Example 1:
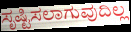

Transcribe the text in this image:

ಸೃಷ್ಟಿಸಲಾಗುವುದಿಲ್ಲ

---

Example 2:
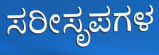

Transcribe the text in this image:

ಸರೀಸೃಪಗಳ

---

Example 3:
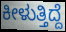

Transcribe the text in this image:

ಕೀಳುತ್ತಿದ್ದೆ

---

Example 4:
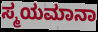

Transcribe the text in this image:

ಸ್ಮಯಮಾನಾ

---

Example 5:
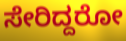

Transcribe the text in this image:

ಸೇರಿದ್ದರೋ